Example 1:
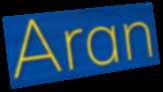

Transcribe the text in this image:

Aran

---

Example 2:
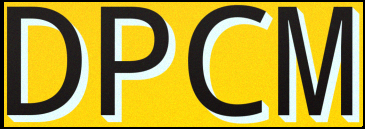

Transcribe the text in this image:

DPCM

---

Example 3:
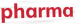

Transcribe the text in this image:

pharma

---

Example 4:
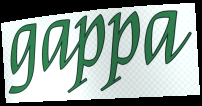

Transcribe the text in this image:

gappa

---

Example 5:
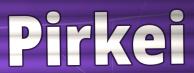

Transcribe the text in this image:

Pirkei